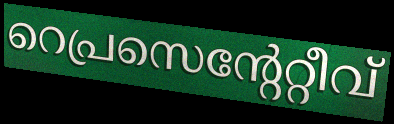
റെപ്രസെന്റേറ്റീവ്